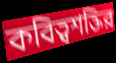
কবিত্বশক্তির